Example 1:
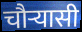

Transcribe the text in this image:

चौर्‍यासी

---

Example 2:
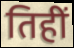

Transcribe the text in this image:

तिहीं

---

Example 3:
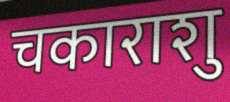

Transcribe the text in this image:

चकाराशु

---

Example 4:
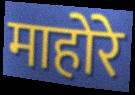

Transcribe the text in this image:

माहोरे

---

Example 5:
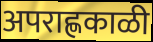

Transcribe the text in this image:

अपराह्णकाळी